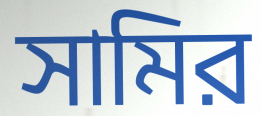
সামির